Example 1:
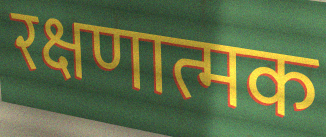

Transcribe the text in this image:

रक्षणात्मक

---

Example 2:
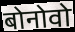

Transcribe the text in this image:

बोनोवो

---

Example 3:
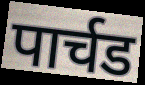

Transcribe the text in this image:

पार्चड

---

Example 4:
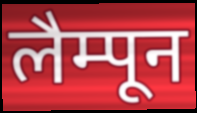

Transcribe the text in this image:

लैम्पून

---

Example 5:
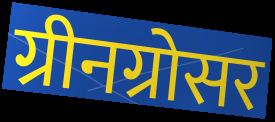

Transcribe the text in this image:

ग्रीनग्रोसर